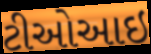
ટીઓઆઇ